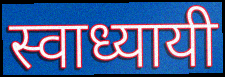
स्वाध्यायी